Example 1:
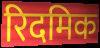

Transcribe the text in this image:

रिदमिक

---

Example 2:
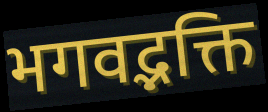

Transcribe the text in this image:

भगवद्भक्ति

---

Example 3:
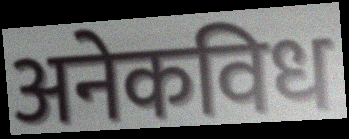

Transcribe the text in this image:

अनेकविध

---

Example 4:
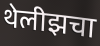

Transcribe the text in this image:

थेलीझचा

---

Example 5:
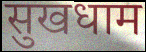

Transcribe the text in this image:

सुखधाम